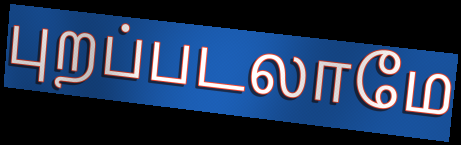
புறப்படலாமே